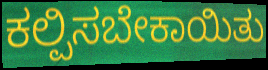
ಕಲ್ಪಿಸಬೇಕಾಯಿತು